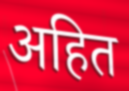
अहित